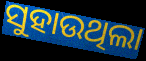
ସୁହାଉଥିଲା